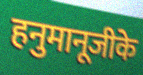
हनुमानूजीके